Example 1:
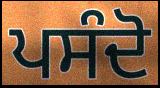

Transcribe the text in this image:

ਪਸੰਦੋ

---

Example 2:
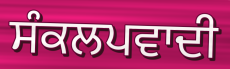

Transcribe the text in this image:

ਸੰਕਲਪਵਾਦੀ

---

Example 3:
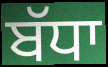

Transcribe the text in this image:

ਬੱਧਾ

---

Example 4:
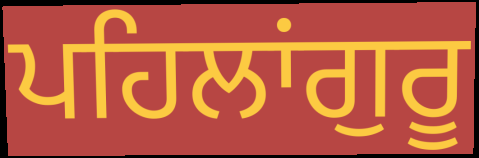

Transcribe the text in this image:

ਪਹਿਲਾਂਗੁਰੂ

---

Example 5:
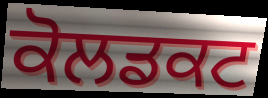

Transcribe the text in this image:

ਕੋਲਡਕਟ